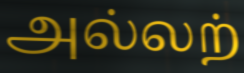
அல்லற்